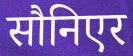
सौनिएर